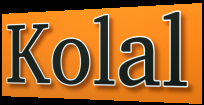
Kolal